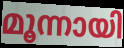
മൂന്നായി